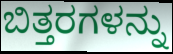
ಬಿತ್ತರಗಳನ್ನು